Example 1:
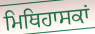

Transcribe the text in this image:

ਮਿਥਿਹਾਸਕਾਂ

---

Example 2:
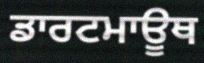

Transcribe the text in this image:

ਡਾਰਟਮਾਊਥ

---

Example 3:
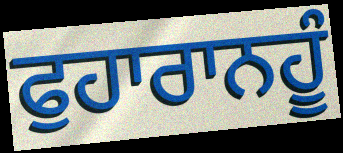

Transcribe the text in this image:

ਫੁਹਾਰਾਨਹੂੰ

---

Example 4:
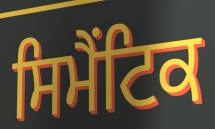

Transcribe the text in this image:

ਸਿਮੈਂਟਿਕ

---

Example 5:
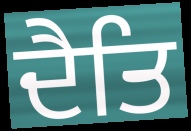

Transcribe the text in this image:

ਦੈਤਿ